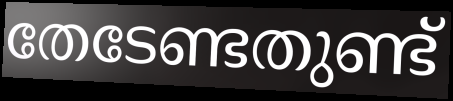
തേടേണ്ടതുണ്ട്